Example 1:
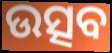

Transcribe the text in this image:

ଉତ୍ସବ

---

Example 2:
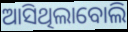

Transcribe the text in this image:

ଆସିଥିଲାବୋଲି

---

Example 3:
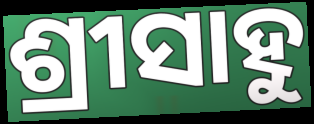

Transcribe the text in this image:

ଶ୍ରୀସାହୁ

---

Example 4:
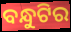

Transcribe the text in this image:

ବନ୍ଧୁଟିର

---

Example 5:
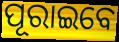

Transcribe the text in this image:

ପୂରାଇବେ